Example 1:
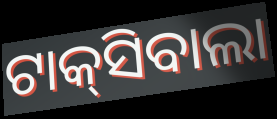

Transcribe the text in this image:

ଟାକ୍‌ସିବାଲା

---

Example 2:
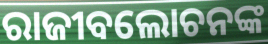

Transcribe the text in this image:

ରାଜୀବଲୋଚନଙ୍କ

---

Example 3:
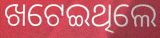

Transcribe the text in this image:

ଖଟେଇଥିଲେ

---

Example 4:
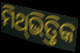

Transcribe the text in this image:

ମିଥ୍‍ଭିତ୍ତିକ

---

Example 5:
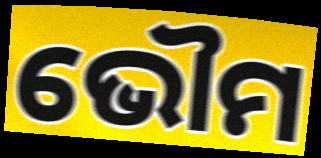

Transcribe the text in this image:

ଭୌମ